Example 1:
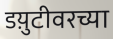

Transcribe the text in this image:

डय़ुटीवरच्या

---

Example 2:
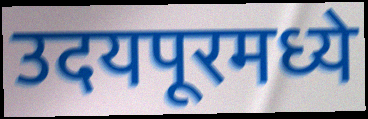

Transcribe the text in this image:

उदयपूरमध्ये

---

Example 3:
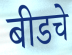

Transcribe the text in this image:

बीडचे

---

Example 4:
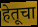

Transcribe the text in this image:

हेतूचा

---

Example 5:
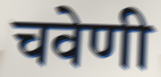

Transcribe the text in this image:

चवेणी